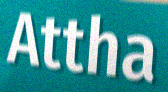
Attha